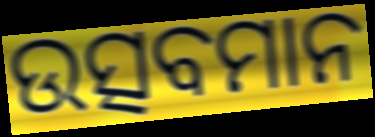
ଉତ୍ସବମାନ